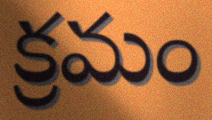
క్రమం